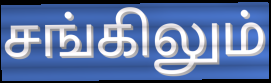
சங்கிலும்